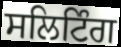
ਸਲਿਟਿੰਗ